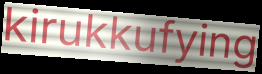
kirukkufying